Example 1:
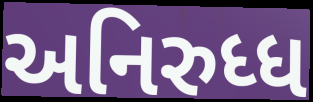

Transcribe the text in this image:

અનિરુધ્ધ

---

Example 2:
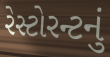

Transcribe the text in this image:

રેસ્ટોરન્ટનું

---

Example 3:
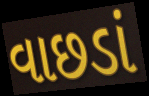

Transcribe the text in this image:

વાછડાં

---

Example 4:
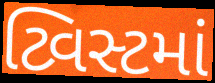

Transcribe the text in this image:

ટ્વિસ્ટમાં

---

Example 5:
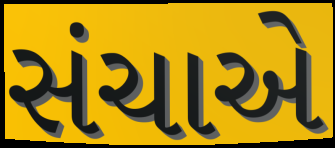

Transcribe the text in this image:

સંચાએ